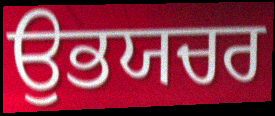
ਉਭਯਚਰ